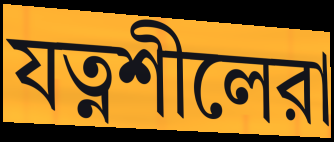
যত্নশীলেরা